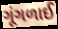
ગૂંગળાઈ